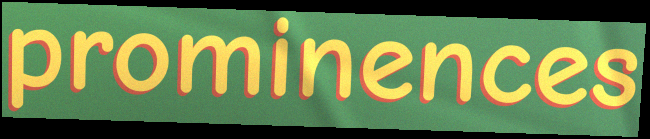
prominences